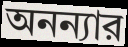
অনন্যার